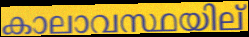
കാലാവസ്ഥയില്